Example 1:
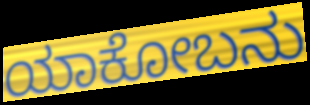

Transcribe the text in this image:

ಯಾಕೋಬನು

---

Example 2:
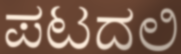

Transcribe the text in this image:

ಪಟದಲಿ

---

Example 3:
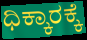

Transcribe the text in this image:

ಧಿಕ್ಕಾರಕ್ಕೆ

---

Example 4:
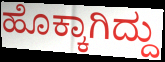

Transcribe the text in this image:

ಹೊಕ್ಕಾಗಿದ್ದು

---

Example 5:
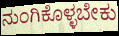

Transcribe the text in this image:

ನುಂಗಿಕೊಳ್ಳಬೇಕು